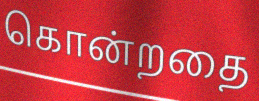
கொன்றதை